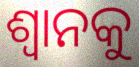
ଶ୍ଵାନକୁ